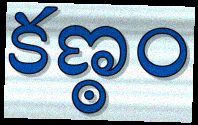
కణ్ఠం